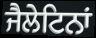
ਜੈਲੇਟਿਨਾਂ